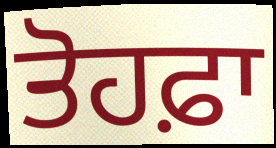
ਤੋਹਫ਼ਾ